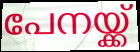
പേനയ്ക്ക്